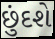
છુંદશે